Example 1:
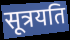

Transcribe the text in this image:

सूत्रयति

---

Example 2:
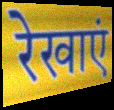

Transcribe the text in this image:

रेखाएं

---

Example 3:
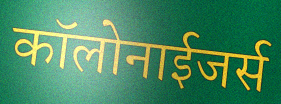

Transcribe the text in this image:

कॉलोनाईजर्स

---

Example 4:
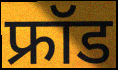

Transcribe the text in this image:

फ्रॉड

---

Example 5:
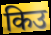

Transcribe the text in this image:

किउ